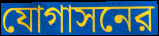
যোগাসনের